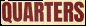
QUARTERS